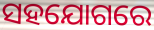
ସହଯୋଗରେ